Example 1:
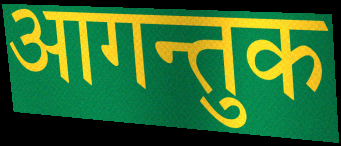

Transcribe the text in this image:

आगन्तुक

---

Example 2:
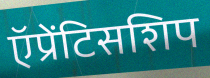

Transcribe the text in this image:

ऍप्रेंटिसशिप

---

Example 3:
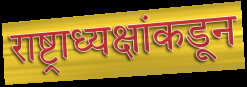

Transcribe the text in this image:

राष्ट्राध्यक्षांकडून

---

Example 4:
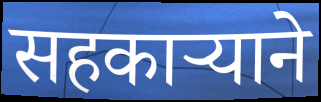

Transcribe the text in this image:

सहकाऱ्याने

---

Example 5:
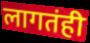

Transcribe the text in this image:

लागतंही